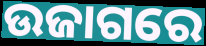
ଉଜାଗରେ